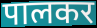
पालकर